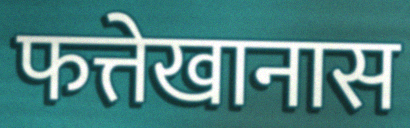
फत्तेखानास